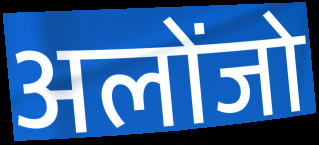
अलोंजो